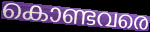
കൊണ്ടവരെ